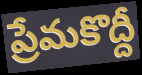
ప్రేమకొద్దీ